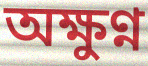
অক্ষুণ্ন